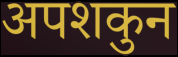
अपशकुन